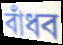
বাঁধব